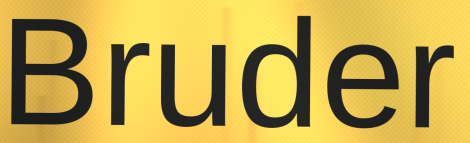
Bruder